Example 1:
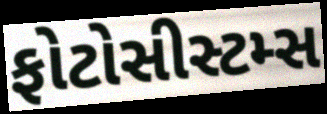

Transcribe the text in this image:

ફોટોસીસ્ટમ્સ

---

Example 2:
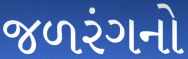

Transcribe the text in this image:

જળરંગનો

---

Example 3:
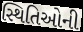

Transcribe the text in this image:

સ્થિતિઓની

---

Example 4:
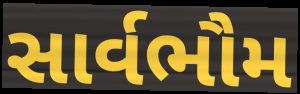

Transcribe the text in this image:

સાર્વભૌમ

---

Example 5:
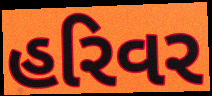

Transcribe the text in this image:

હરિવર